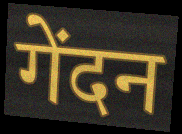
गेंदन